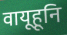
वायूहूनि